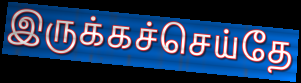
இருக்கச்செய்தே